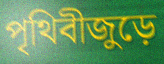
পৃথিবীজুড়ে